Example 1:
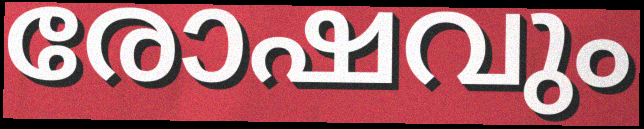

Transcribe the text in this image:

രോഷവും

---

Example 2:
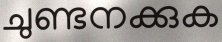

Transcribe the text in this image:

ചുണ്ടനക്കുക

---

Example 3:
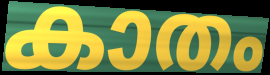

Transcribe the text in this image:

കാതം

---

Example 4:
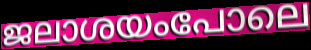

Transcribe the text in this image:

ജലാശയംപോലെ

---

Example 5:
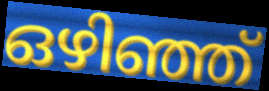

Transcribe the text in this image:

ഒഴിഞ്ഞ്